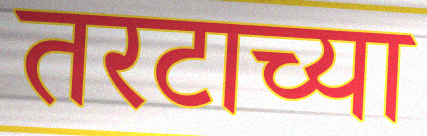
तरटाच्या